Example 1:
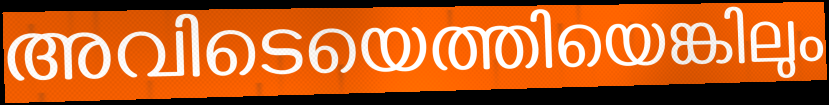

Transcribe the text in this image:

അവിടെയെത്തിയെങ്കിലും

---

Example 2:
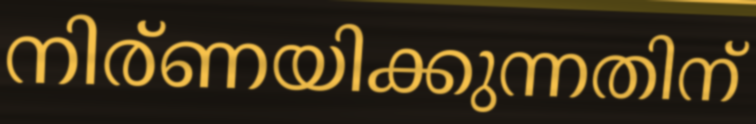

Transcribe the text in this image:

നിര്ണയിക്കുന്നതിന്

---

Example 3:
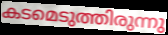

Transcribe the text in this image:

കടമെടുത്തിരുന്നു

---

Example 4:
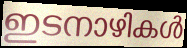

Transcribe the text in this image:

ഇടനാഴികൾ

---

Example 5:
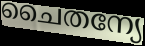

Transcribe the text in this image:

ചൈതന്യേ